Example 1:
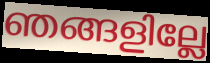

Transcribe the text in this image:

ഞങ്ങളില്ലേ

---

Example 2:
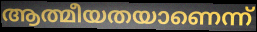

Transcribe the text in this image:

ആത്മീയതയാണെന്ന്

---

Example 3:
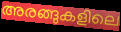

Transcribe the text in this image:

അരങ്ങുകളിലെ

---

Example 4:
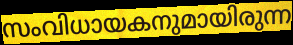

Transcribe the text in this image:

സംവിധായകനുമായിരുന്ന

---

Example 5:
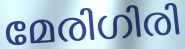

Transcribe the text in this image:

മേരിഗിരി